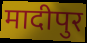
मादीपुर